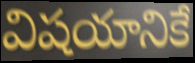
విషయానికే